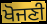
ਖੋਜਣੀ